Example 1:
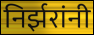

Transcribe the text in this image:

निर्झरांनी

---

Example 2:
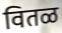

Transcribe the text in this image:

वितळ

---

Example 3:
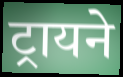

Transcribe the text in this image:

ट्रायने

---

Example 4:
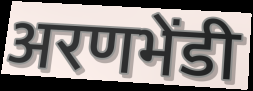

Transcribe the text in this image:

अरणभेंडी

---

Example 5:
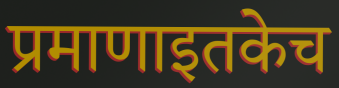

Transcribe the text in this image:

प्रमाणाइतकेच